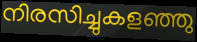
നിരസിച്ചുകളഞ്ഞു